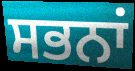
ਸਭਨਾਂ